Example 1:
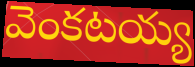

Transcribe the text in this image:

వెంకటయ్య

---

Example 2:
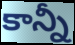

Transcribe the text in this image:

కాన్నీ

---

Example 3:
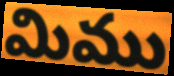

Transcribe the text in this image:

మిము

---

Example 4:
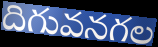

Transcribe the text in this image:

దిగువనగల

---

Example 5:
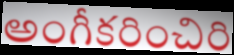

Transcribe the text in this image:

అంగీకరించిరి